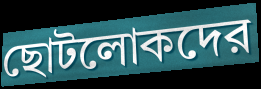
ছোটলোকদের